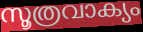
സൂത്രവാക്യം